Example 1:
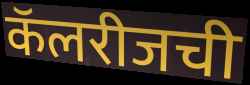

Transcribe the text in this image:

कॅलरीजची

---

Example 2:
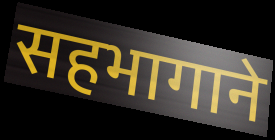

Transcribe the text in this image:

सहभागाने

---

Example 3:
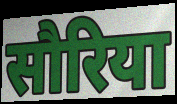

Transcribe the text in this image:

सौरिया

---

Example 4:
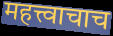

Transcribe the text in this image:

महत्त्वाचाच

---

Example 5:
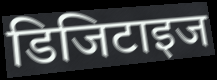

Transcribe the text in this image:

डिजिटाइज